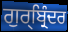
ਗੁਰ੍ਬ੍ਰਿੰਦਰ